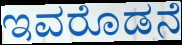
ಇವರೊಡನೆ